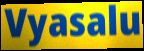
Vyasalu